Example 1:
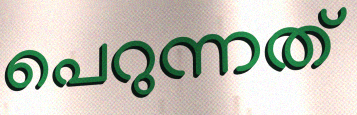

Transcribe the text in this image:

പെറുന്നത്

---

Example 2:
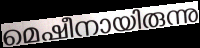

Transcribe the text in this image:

മെഷീനായിരുന്നു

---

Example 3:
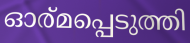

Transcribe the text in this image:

ഓര്മപ്പെടുത്തി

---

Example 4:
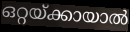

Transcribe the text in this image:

ഒറ്റയ്ക്കായാൽ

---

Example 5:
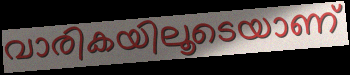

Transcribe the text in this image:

വാരികയിലൂടെയാണ്